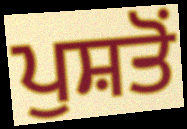
ਪੁਸ਼ਤੋਂ